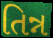
તિન્ન